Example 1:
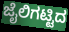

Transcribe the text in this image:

ಜೈಲಿಗಟ್ಟಿದ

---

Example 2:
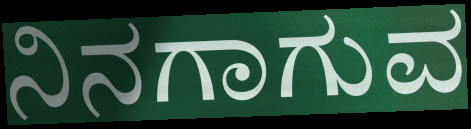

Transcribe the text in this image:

ನಿನಗಾಗುವ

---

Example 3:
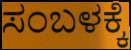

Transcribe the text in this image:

ಸಂಬಳಕ್ಕೆ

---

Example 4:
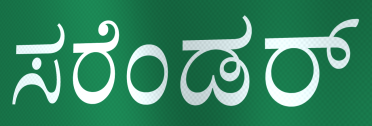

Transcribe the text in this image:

ಸರೆಂಡರ್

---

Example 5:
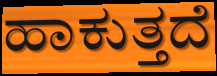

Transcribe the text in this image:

ಹಾಕುತ್ತದೆ